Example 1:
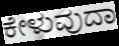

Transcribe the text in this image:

ಕೇಳುವುದಾ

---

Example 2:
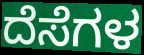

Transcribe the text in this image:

ದೆಸೆಗಳ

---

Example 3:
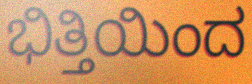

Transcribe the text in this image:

ಭಿತ್ತಿಯಿಂದ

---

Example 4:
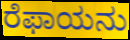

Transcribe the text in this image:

ರೆಫಾಯನು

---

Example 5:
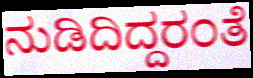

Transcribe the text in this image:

ನುಡಿದಿದ್ದರಂತೆ